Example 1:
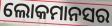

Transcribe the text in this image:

ଲୋକମାନସର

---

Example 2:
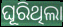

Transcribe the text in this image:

ଘୂରିଥିଲା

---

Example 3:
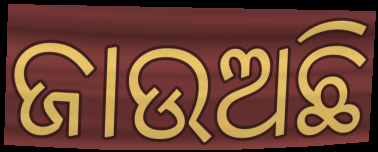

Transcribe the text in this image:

ଜାଉଅଛି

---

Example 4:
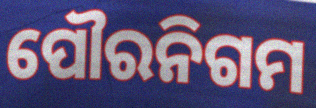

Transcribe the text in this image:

ପୌରନିଗମ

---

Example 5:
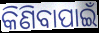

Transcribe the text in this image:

କିଣିବାପାଇଁ